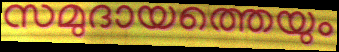
സമുദായത്തെയും